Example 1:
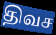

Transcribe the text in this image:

திவச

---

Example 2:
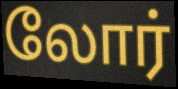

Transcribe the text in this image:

லோர்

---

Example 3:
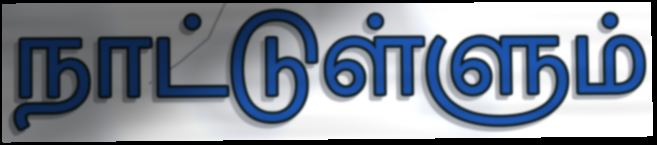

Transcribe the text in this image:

நாட்டுள்ளும்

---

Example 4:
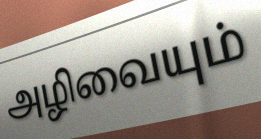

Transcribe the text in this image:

அழிவையும்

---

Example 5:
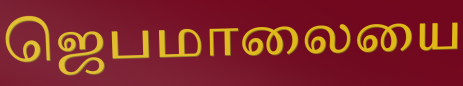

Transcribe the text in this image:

ஜெபமாலையை